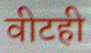
वीटही